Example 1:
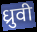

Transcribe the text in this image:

ध्रुवी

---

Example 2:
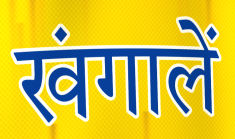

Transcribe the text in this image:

खंगालें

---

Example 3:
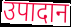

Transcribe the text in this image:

उपादान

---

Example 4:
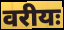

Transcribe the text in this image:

वरीयः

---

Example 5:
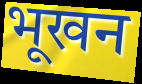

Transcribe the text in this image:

भूखन